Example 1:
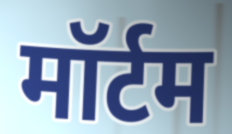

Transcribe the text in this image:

मॉर्टम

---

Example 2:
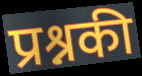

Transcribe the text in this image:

प्रश्नकी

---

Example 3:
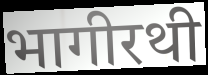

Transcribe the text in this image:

भागीरथी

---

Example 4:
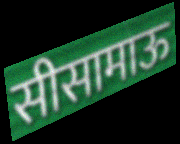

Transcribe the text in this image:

सीसामाऊ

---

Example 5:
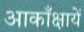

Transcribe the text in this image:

आकाँक्षायें